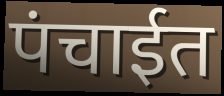
पंचाईत